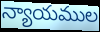
న్యాయముల